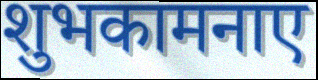
शुभकामनाए